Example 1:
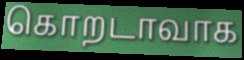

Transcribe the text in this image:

கொறடாவாக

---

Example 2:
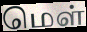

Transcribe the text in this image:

மெள்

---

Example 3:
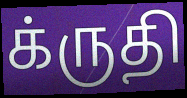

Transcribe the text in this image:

க்ருதி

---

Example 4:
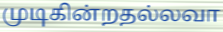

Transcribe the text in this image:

முடிகின்றதல்லவா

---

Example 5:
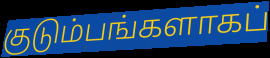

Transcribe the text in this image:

குடும்பங்களாகப்